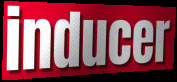
inducer